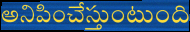
అనిపించేస్తుంటుంది